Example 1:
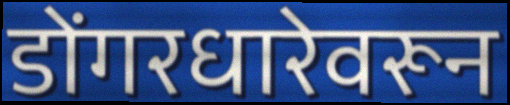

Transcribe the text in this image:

डोंगरधारेवरून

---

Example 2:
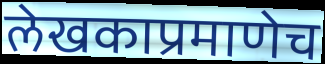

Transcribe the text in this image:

लेखकाप्रमाणेच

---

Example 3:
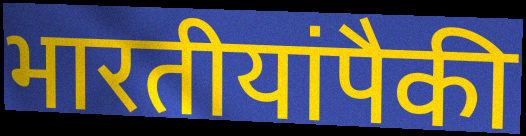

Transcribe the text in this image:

भारतीयांपैकी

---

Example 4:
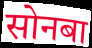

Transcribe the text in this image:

सोनबा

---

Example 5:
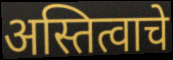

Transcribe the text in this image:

अस्तित्वाचे